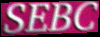
SEBC